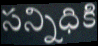
సన్నిధికి